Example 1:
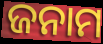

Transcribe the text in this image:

ଜନାମ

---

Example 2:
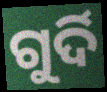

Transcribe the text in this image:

ଗୁର୍ଦି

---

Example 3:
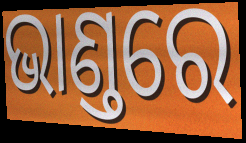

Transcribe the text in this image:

ଭାଣ୍ଡରେ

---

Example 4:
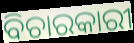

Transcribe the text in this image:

ବିଚାରକାରୀ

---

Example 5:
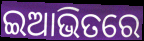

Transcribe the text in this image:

ଇଆଭିତରେ